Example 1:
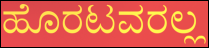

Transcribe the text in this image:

ಹೊರಟವರಲ್ಲ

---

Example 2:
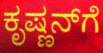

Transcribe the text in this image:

ಕೃಷ್ಣನ್‌ಗೆ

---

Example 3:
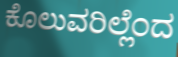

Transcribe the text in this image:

ಕೊಲುವರಿಲ್ಲೆಂದ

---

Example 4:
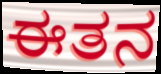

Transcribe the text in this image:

ಈತನ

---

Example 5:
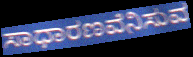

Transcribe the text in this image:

ಸಾಧಾರಣವೆನಿಸುವ